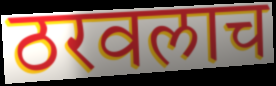
ठरवलाच